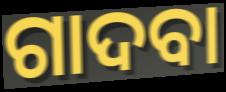
ଗାଦବା